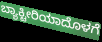
ಬ್ಯಾಕ್ಟೀರಿಯಾದೊಳಗೆ